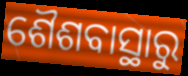
ଶୈଶବାସ୍ଥାରୁ